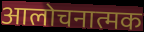
आलोचनात्मक